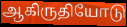
ஆகிருதியோடு